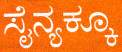
ಸೈನ್ಯಕ್ಕೂ